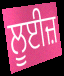
ਲੂਈਜ਼